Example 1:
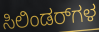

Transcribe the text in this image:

ಸಿಲಿಂಡರ್‌ಗಳ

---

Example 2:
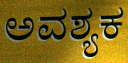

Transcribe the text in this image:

ಅವಶ್ಯಕ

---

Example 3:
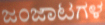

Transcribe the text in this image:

ಜಂಜಾಟಗಳ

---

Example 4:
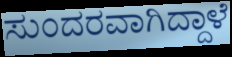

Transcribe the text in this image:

ಸುಂದರವಾಗಿದ್ದಾಳೆ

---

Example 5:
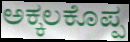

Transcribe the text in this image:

ಅಕ್ಕಲಕೊಪ್ಪ